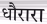
धौरारा